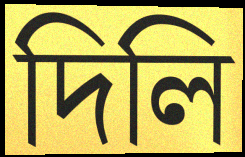
দিলি